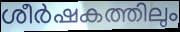
ശീർഷകത്തിലും